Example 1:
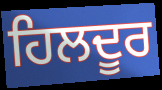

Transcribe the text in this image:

ਹਿਲਦੂਰ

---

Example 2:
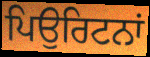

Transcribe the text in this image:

ਪਿਉਰਿਟਨਾਂ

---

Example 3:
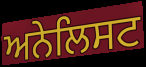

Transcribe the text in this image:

ਅਨੇਲਿਸਟ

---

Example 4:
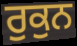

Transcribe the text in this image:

ਰੁਕੁਨ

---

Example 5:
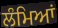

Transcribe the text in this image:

ਲੰਮਿਆਂ